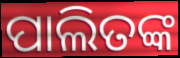
ପାଲିତଙ୍କ